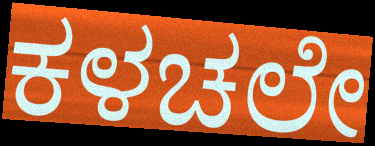
ಕಳಚಲೇ